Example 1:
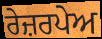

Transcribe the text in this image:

ਰੇਜ਼ਰਪੇਅ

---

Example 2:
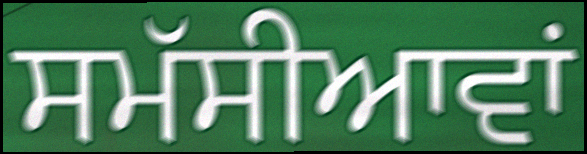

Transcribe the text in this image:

ਸਮੱਸੀਆਵਾਂ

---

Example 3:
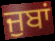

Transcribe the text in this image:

ਜੁਬਾਂ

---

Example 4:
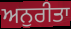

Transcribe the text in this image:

ਅਨੁਰੀਤਾ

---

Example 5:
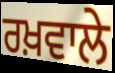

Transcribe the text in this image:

ਰਖ਼ਵਾਲੇ